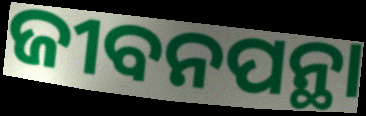
ଜୀବନପନ୍ଥା